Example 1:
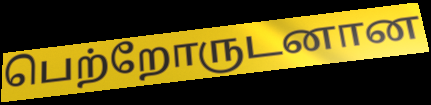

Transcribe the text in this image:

பெற்றோருடனான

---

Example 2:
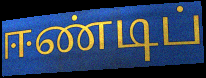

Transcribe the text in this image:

ஈண்டிப்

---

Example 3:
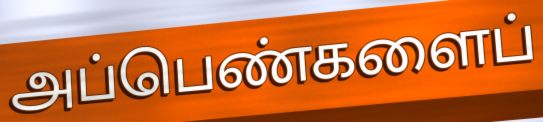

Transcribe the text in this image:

அப்பெண்களைப்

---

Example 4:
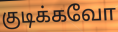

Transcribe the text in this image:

குடிக்கவோ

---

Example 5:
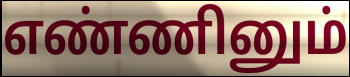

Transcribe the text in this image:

எண்ணினும்